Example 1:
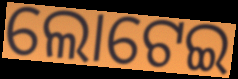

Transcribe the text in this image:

ଲୋଟେଇ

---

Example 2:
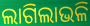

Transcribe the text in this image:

ଲାଗିଲାଭଳି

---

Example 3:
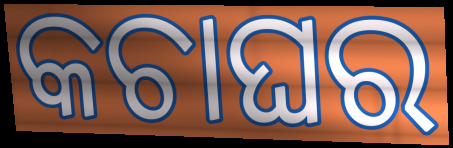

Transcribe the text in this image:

କଚାଘର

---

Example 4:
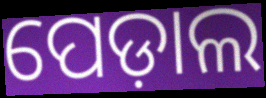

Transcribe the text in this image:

ପେଡ଼ାଲ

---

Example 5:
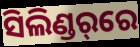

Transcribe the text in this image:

ସିଲିଣ୍ଡର୍‌ରେ